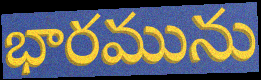
భారమును